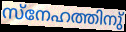
സ്നേഹത്തിനു്